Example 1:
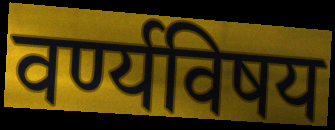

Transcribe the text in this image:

वर्ण्यविषय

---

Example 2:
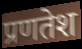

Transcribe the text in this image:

प्रणतेश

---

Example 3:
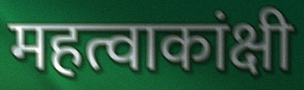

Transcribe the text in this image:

महत्वाकांक्षी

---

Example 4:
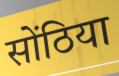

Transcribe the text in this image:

सोंठिया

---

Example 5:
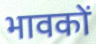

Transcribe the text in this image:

भावकों